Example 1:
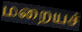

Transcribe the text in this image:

மறையச்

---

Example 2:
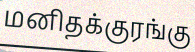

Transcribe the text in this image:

மனிதக்குரங்கு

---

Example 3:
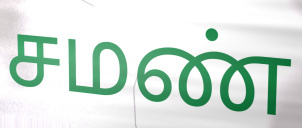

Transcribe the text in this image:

சமண்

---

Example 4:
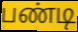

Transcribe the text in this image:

பண்டி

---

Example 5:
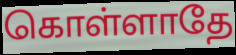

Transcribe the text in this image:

கொள்ளாதே